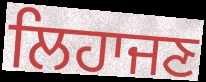
ਲਿਹਾਜਣ